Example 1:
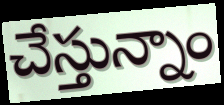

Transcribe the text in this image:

చేస్తున్నాం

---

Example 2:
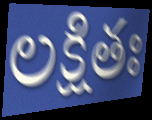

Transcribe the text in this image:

లక్షితః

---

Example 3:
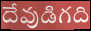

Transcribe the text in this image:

దేవుడిగది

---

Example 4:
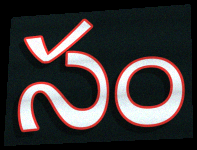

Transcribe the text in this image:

సం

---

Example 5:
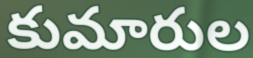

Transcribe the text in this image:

కుమారుల